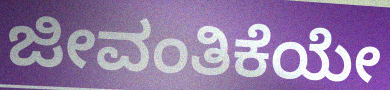
ಜೀವಂತಿಕೆಯೇ